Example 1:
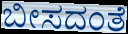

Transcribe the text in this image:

ಬೀಸದಂತೆ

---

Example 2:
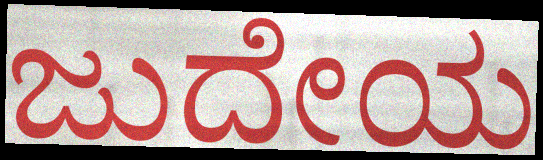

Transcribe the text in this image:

ಜುದೇಯ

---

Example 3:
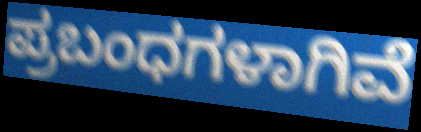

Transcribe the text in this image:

ಪ್ರಬಂಧಗಳಾಗಿವೆ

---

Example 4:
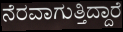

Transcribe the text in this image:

ನೆರವಾಗುತ್ತಿದ್ದಾರೆ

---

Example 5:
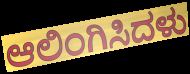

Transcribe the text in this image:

ಆಲಿಂಗಿಸಿದಳು